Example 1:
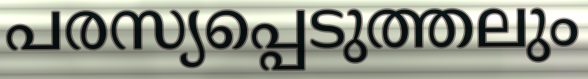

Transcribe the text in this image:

പരസ്യപ്പെടുത്തലും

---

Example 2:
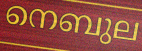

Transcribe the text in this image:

നെബുല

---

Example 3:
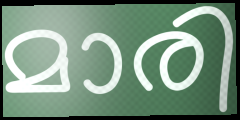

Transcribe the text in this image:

മാരി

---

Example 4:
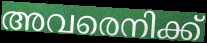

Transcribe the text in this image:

അവരെനിക്ക്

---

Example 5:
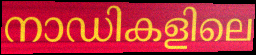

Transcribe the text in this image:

നാഡികളിലെ